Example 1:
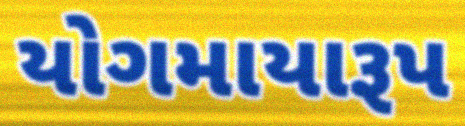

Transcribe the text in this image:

યોગમાયારૂપ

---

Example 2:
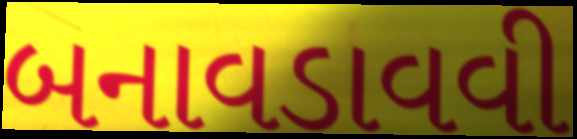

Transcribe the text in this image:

બનાવડાવવી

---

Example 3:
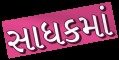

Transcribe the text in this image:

સાધકમાં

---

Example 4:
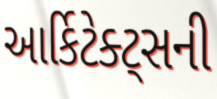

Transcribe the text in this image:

આર્કિટેક્ટ્સની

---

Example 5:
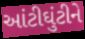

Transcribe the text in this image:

આંટીઘુંટીને